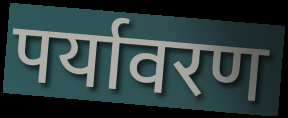
पर्यावरण